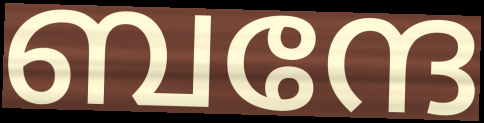
ബന്ദേ